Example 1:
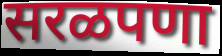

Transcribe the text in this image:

सरळपणा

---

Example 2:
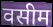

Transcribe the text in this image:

वसीम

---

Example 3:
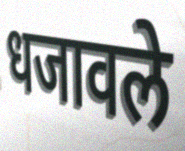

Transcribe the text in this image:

धजावले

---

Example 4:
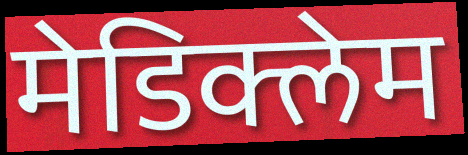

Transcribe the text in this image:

मेडिक्लेम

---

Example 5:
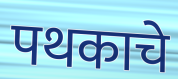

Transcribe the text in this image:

पथकाचे